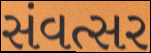
સંવત્સર